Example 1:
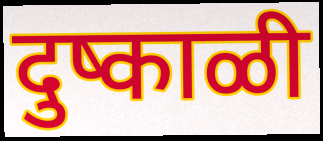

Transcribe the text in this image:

दुष्काळी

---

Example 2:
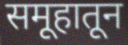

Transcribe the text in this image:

समूहातून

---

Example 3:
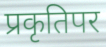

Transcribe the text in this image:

प्रकृतिपर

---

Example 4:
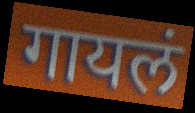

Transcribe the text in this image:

गायलं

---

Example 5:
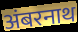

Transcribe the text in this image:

अंबरनाथ